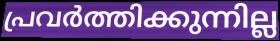
പ്രവർത്തിക്കുന്നില്ല